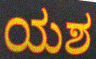
ಯಶ